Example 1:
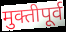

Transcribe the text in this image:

मुक्तीपूर्व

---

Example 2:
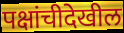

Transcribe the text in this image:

पक्षांचीदेखील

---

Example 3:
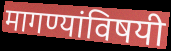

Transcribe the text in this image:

मागण्यांविषयी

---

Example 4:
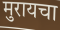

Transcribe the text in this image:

मुरायचा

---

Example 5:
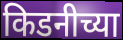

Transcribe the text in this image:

किडनीच्या